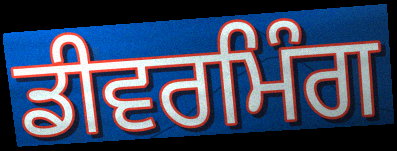
ਡੀਵਰਮਿੰਗ